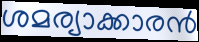
ശമര്യാക്കാരൻ